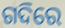
ଗଦିରେ